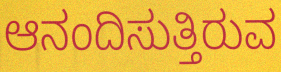
ಆನಂದಿಸುತ್ತಿರುವ